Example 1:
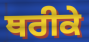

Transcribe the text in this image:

ਥਰੀਕੇ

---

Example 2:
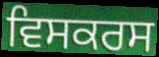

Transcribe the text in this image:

ਵਿਸਕਰਸ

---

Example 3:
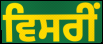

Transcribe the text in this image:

ਵਿਸਰੀਂ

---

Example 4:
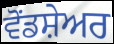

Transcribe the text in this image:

ਵੋਂਡਸ਼ੇਅਰ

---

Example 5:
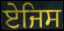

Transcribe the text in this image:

ਏਜਿਸ